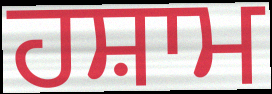
ਹਸ਼ਾਮ